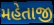
મહેતાજી